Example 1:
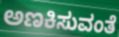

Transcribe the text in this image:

ಅಣಕಿಸುವಂತೆ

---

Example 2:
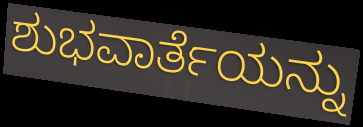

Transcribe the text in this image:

ಶುಭವಾರ್ತೆಯನ್ನು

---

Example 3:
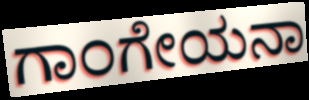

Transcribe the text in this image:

ಗಾಂಗೇಯನಾ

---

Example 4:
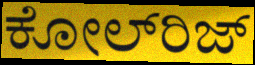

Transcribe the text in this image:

ಕೋಲ್‍ರಿಜ್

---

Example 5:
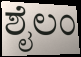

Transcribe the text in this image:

ಶೈಲಂ